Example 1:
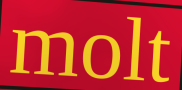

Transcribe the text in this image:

molt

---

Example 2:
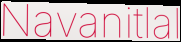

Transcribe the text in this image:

Navanitlal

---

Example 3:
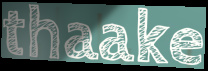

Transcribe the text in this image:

thaake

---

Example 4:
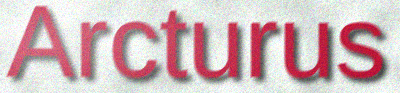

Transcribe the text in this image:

Arcturus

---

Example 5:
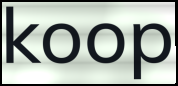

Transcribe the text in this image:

koop